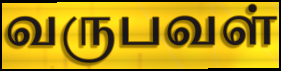
வருபவள்